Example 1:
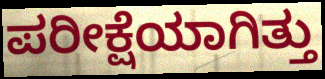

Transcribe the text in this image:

ಪರೀಕ್ಷೆಯಾಗಿತ್ತು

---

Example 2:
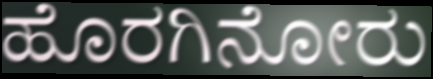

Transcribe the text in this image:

ಹೊರಗಿನೋರು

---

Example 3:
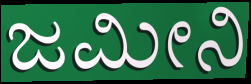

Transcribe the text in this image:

ಜಮೀನಿ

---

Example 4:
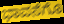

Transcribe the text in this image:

ಭಾವನೆಗೊ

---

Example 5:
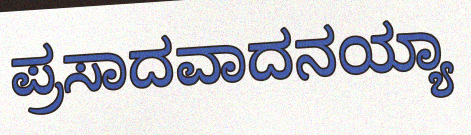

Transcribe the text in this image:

ಪ್ರಸಾದವಾದನಯ್ಯಾ